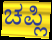
ಚಪ್ಲಿ